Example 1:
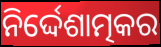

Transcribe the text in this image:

ନିର୍ଦ୍ଦେଶାତ୍ମକର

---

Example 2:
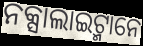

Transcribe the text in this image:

ନକ୍ସାଲାଇଟ୍ମାନେ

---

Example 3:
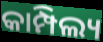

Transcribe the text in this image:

କାମ୍ପିଲ୍ୟ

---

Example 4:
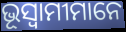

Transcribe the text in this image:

ଭୂସ୍ୱାମୀମାନେ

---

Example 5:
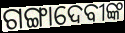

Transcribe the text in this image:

ଗଙ୍ଗାଦେବୀଙ୍କ